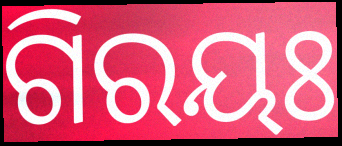
ଗିରୟଃ